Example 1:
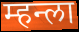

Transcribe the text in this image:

म्हन्ला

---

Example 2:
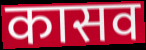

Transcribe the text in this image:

कासव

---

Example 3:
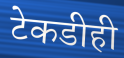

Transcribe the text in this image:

टेकडीही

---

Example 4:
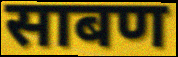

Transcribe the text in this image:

साबण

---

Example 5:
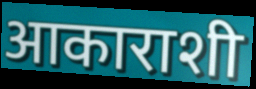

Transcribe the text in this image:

आकाराशी